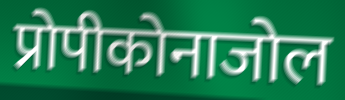
प्रोपीकोनाजोल